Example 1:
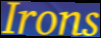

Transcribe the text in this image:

Irons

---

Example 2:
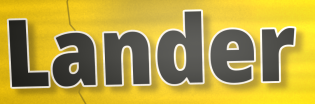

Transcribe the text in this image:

Lander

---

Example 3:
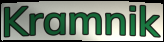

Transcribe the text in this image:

Kramnik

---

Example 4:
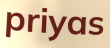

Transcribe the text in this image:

priyas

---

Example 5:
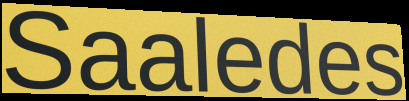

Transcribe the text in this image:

Saaledes